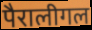
पैरालीगल